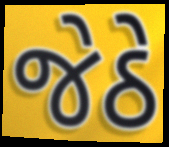
જેઠે